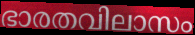
ഭാരതവിലാസം